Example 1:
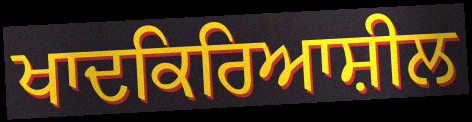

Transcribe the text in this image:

ਖਾਦਕਿਰਿਆਸ਼ੀਲ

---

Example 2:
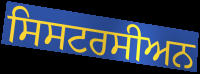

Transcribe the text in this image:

ਸਿਸਟਰਸੀਅਨ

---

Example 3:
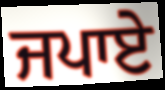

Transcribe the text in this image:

ਜਪਾਏ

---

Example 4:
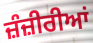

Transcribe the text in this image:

ਜ਼ੰਜ਼ੀਰੀਆਂ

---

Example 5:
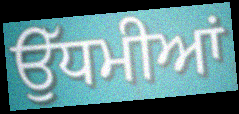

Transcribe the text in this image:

ਉੱਧਮੀਆਂ